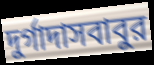
দুর্গাদাসবাবুর